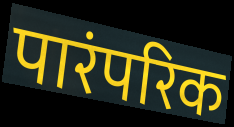
पारंपरिक